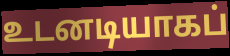
உடனடியாகப்